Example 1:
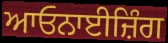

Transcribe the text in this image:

ਆਓਨਾਈਜ਼ਿੰਗ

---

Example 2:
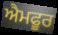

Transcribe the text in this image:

ਐਮਫੂਰ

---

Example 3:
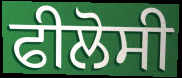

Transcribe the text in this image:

ਫੀਲੋਸੀ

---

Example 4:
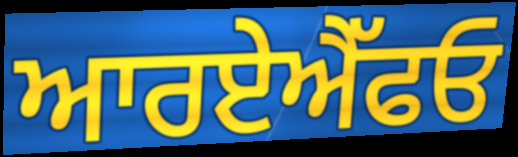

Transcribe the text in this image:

ਆਰਏਐੱਫਓ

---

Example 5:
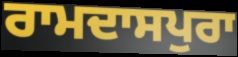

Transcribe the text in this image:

ਰਾਮਦਾਸਪੁਰਾ